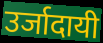
उर्जादायी